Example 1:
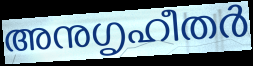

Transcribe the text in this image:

അനുഗൃഹീതർ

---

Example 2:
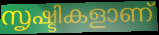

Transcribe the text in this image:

സൃഷ്ടികളാണ്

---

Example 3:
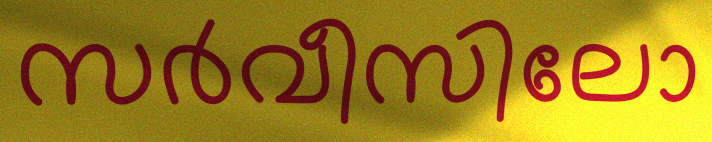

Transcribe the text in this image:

സർവീസിലോ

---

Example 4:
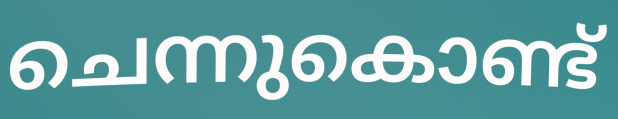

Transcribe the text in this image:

ചെന്നുകൊണ്ട്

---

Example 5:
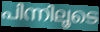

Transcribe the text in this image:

പിന്നിലൂടെ